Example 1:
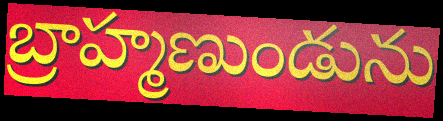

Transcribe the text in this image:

బ్రాహ్మణుండును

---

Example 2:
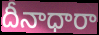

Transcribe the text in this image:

దీనాధారా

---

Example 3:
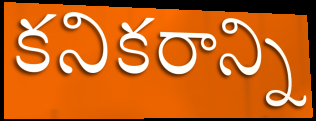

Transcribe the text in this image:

కనికరాన్ని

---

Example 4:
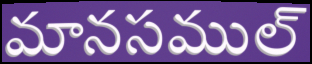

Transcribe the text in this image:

మానసముల్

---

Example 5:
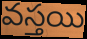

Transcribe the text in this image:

వస్తయి